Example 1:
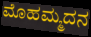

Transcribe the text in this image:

ಮೊಹಮ್ಮದನ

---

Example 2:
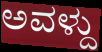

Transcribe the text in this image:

ಅವಳ್ದು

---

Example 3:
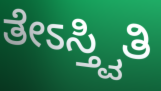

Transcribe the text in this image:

ತೇಽಸ್ತ್ವಿತಿ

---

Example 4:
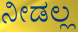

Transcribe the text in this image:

ನೀಡಲ್ಲ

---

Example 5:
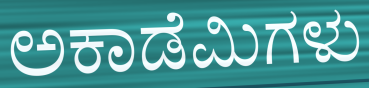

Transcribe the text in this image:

ಅಕಾಡೆಮಿಗಳು